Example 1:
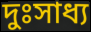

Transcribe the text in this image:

দুঃসাধ্য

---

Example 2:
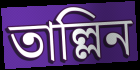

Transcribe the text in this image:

তাল্লিন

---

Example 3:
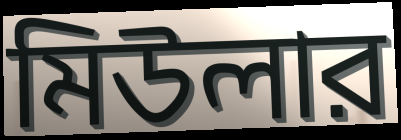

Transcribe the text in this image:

মিউলার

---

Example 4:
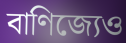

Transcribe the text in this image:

বাণিজ্যেও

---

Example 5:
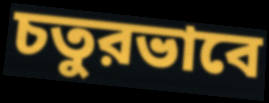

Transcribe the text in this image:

চতুরভাবে